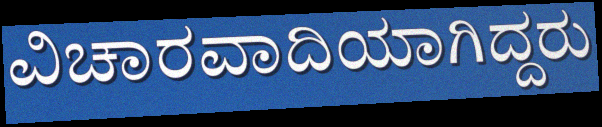
ವಿಚಾರವಾದಿಯಾಗಿದ್ದರು